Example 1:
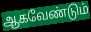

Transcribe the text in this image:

ஆகவேண்டும்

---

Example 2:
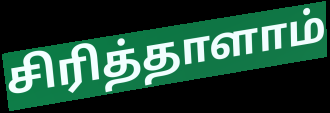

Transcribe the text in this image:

சிரித்தாளாம்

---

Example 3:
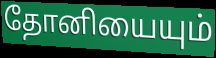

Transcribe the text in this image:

தோனியையும்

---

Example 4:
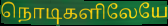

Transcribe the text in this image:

நொடிகளிலேயே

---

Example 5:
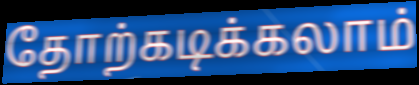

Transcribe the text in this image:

தோற்கடிக்கலாம்